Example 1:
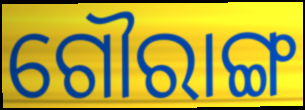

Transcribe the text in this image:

ଗୌରାଙ୍ଗ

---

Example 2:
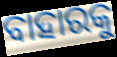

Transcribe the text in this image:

ବାହାରକୁ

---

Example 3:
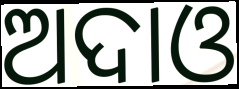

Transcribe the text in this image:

ଅଦାଓ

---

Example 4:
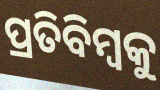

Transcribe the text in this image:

ପ୍ରତିବିମ୍ବକୁ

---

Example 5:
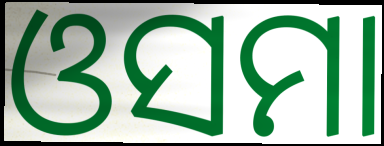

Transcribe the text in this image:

ଓସମା